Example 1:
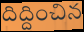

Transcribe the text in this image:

దిద్దించిన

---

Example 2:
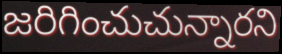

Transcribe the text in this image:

జరిగించుచున్నారని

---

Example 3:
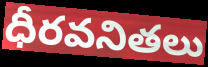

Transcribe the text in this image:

ధీరవనితలు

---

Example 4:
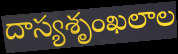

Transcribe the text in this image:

దాస్యశృంఖలాల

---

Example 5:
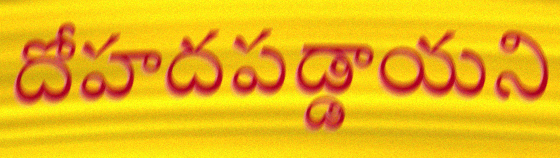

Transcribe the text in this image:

దోహదపడ్డాయని